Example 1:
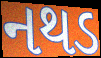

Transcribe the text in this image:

નથડ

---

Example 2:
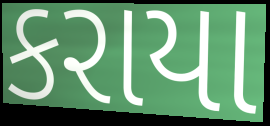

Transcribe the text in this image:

કરાયા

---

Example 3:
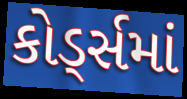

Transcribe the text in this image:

કોર્ડ્સમાં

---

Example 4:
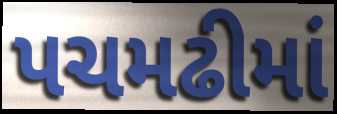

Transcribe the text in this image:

પચમઢીમાં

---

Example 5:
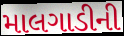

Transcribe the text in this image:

માલગાડીની